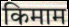
किमाम